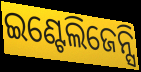
ଇଣ୍ଟେଲିଜେନ୍ସି